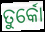
ତୁର୍କୋ